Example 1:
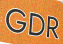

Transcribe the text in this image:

GDR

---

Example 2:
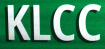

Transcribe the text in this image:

KLCC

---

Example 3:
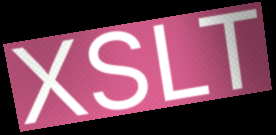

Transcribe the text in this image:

XSLT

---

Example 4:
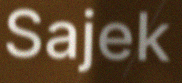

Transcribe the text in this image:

Sajek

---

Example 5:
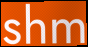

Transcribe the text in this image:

shm